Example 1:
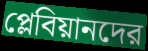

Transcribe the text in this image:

প্লেবিয়ানদের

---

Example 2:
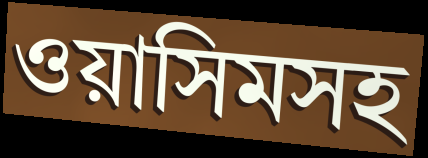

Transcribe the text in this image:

ওয়াসিমসহ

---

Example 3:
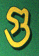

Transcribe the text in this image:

গু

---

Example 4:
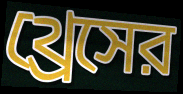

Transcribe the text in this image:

থ্রেসের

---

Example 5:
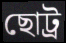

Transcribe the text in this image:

ছোট্র